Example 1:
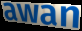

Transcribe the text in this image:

awan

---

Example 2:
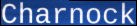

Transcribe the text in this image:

Charnock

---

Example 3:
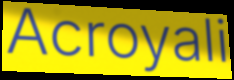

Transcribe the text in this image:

Acroyali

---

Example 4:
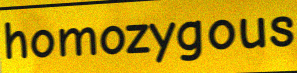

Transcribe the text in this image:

homozygous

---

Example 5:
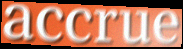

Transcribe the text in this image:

accrue